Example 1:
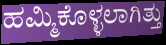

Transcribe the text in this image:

ಹಮ್ಮಿಕೊಳ್ಳಲಾಗಿತ್ತು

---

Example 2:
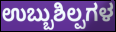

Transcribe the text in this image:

ಉಬ್ಬುಶಿಲ್ಪಗಳ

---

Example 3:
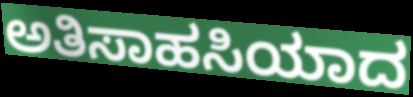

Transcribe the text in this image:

ಅತಿಸಾಹಸಿಯಾದ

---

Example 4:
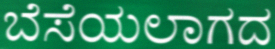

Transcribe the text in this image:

ಬೆಸೆಯಲಾಗದ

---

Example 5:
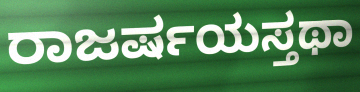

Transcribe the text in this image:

ರಾಜರ್ಷಯಸ್ತಥಾ